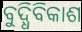
ବୁଦ୍ଧିବିକାଶ